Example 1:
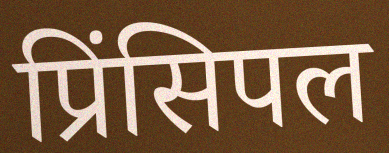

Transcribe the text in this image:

प्रिंसिपल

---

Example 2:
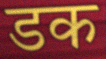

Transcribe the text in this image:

डक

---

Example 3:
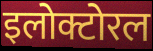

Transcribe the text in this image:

इलोक्टोरल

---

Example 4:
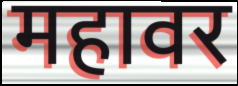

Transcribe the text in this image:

महावर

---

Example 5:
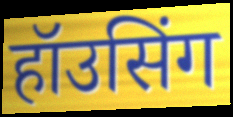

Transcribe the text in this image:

हॉउसिंग